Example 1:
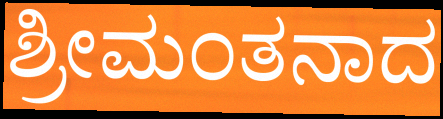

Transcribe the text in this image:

ಶ್ರೀಮಂತನಾದ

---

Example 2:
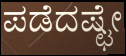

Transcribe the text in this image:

ಪಡೆದಷ್ಟೇ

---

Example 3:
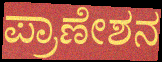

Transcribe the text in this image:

ಪ್ರಾಣೇಶನ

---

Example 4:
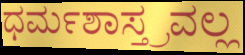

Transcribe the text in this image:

ಧರ್ಮಶಾಸ್ತ್ರವಲ್ಲ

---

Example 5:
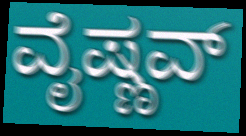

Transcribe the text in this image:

ವೈಷ್ಣವ್